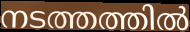
നടത്തത്തിൽ